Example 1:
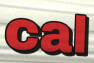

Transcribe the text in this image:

cal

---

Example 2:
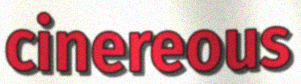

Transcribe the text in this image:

cinereous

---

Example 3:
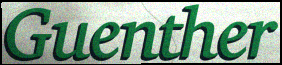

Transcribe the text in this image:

Guenther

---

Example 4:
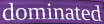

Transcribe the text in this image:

dominated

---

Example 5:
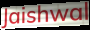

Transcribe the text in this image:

Jaishwal